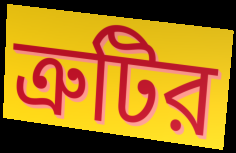
ত্রুটির